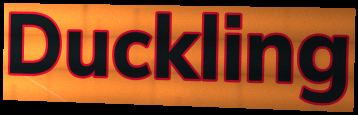
Duckling